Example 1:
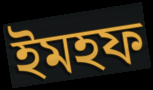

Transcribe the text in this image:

ইমহফ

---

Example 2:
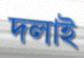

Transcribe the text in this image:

দলাই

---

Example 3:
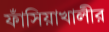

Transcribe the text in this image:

ফাঁসিয়াখালীর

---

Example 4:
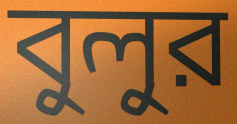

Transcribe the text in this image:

বুলুর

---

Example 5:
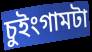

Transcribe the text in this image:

চুইংগামটা